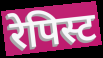
रेपिस्ट